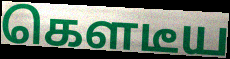
கௌடீய